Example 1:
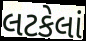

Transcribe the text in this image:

લટકેલાં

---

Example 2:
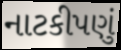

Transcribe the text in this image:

નાટકીપણું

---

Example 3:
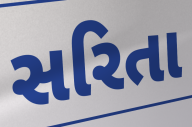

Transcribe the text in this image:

સરિતા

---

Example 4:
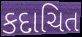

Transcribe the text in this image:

કદાચિત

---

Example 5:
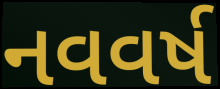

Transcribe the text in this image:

નવવર્ષ